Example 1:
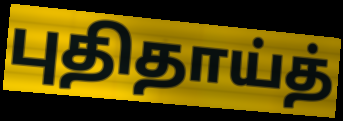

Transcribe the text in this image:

புதிதாய்த்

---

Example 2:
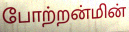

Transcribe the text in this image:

போற்றன்மின்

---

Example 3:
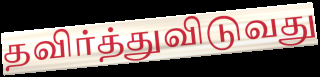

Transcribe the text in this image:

தவிர்த்துவிடுவது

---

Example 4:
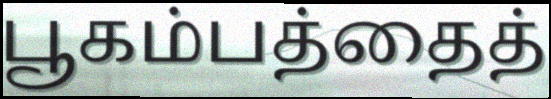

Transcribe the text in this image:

பூகம்பத்தைத்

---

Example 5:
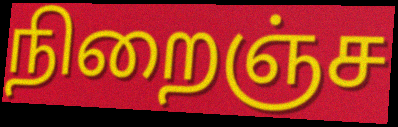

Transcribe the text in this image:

நிறைஞ்ச